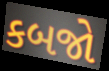
કબજો